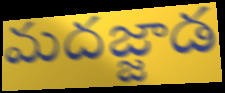
మదజ్జాడ